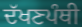
ਦੱਖਣਪੰਥੀ